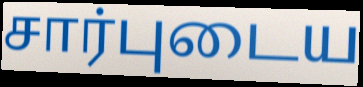
சார்புடைய